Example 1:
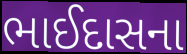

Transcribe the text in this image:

ભાઈદાસના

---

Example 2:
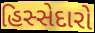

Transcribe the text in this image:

હિસ્સેદારો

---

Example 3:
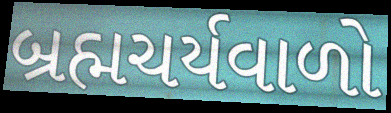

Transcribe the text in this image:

બ્રહ્મચર્યવાળો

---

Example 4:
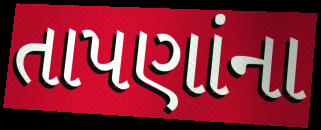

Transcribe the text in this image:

તાપણાંના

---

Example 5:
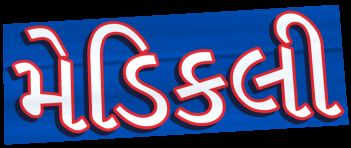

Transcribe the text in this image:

મેડિકલી